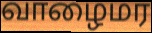
வாழைமர